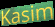
Kasim